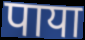
पाया